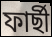
ফাৰ্ছী